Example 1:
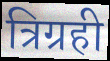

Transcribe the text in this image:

त्रिग्रही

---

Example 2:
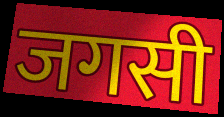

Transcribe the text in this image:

जगसी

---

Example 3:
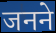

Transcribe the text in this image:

जनने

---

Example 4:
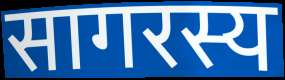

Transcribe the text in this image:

सागरस्य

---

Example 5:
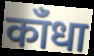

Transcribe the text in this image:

काँधा